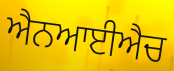
ਐਨਆਈਐਚ